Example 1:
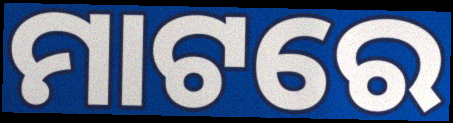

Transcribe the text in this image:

ମାଟରେ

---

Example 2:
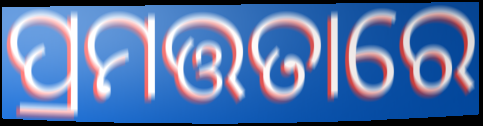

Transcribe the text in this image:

ପ୍ରମତ୍ତତାରେ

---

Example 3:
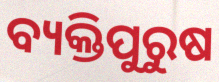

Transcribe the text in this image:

ବ୍ୟକ୍ତିପୁରୁଷ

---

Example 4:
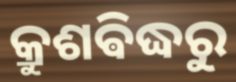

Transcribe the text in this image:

କ୍ରୁଶଵିଦ୍ଧରୁ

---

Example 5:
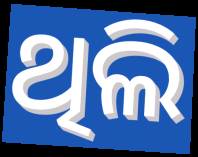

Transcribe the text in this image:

ଥିଲି